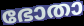
ഭോതാ